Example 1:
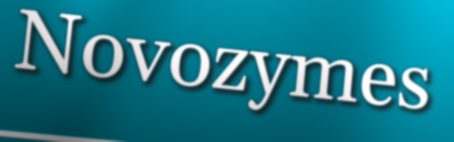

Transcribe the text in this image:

Novozymes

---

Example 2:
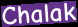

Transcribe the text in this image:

Chalak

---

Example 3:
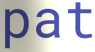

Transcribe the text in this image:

pat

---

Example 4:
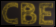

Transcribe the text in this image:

CBE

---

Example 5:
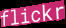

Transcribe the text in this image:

flickr